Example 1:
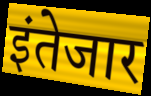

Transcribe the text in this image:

इंतेजार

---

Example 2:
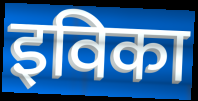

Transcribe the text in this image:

इविका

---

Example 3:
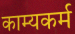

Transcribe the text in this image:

काम्यकर्म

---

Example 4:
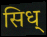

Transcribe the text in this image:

सिध्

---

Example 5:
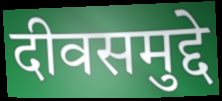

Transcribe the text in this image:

दीवसमुद्दे